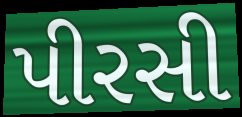
પીરસી